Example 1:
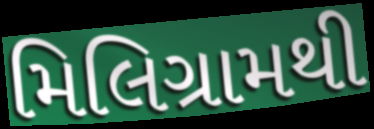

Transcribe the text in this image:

મિલિગ્રામથી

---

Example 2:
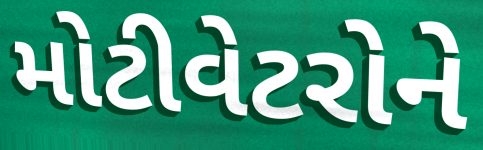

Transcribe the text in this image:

મોટીવેટરોને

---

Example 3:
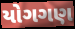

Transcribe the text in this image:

યોગગણ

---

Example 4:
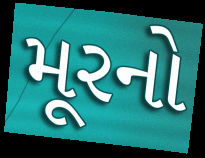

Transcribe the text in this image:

મૂરનો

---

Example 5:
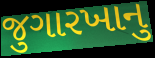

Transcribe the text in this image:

જુગારખાનુ